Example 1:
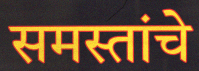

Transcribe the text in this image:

समस्तांचे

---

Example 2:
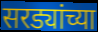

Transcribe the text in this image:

सरड्यांच्या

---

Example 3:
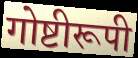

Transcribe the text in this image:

गोष्टीरूपी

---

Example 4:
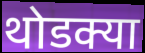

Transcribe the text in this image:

थोडक्या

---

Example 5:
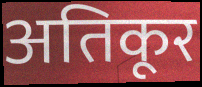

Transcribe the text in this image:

अतिकूर